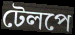
টেলপে